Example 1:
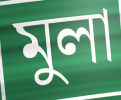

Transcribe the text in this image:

মুলা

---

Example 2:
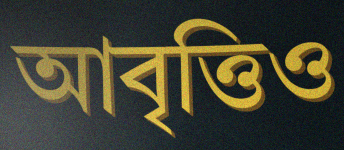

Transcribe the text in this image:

আবৃত্তিও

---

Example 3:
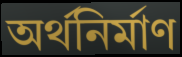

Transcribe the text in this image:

অর্থনির্মাণ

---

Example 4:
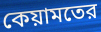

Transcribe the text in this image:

কেয়ামতের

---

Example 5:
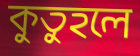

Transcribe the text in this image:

কুতুহলে